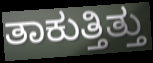
ತಾಕುತ್ತಿತ್ತು